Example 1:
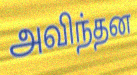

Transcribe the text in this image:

அவிந்தன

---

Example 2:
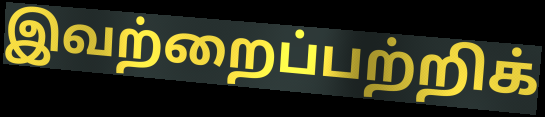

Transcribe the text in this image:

இவற்றைப்பற்றிக்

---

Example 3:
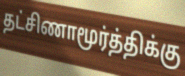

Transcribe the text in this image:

தட்சிணாமூர்த்திக்கு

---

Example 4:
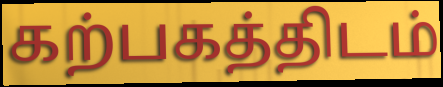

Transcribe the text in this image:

கற்பகத்திடம்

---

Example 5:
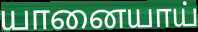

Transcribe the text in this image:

யானையாய்